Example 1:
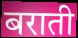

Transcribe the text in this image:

बराती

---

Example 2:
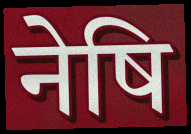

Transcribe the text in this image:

नेषि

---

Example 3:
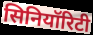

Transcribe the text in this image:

सिनियॉरिटी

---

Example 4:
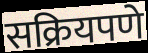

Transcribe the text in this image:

सक्रियपणे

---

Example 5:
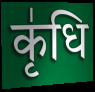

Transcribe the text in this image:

कृ॑धि